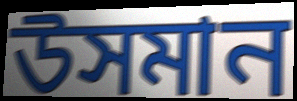
উসমান